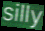
silly